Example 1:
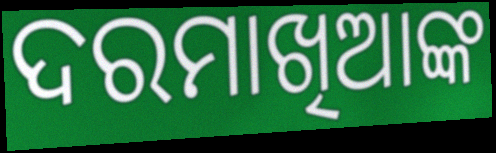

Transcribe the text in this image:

ଦରମାଖିଆଙ୍କ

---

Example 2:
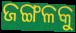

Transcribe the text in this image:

ଜଙ୍ଗଳକୁ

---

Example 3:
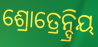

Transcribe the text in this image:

ଶ୍ରୋତ୍ରେନ୍ଦ୍ରିୟ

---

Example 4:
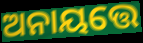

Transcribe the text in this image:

ଅନାୟତ୍ତେ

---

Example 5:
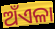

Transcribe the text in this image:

ଅଁଏଳା